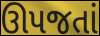
ઊપજતાં